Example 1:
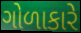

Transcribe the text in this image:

ગોળાકારે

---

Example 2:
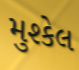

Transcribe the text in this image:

મુશ્કેલ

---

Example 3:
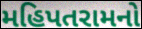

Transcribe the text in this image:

મહિપતરામનો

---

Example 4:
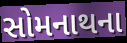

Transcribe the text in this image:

સોમનાથના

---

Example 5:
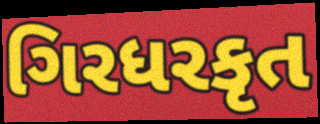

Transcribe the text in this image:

ગિરધરકૃત